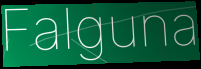
Falguna